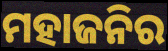
ମହାଜନିର